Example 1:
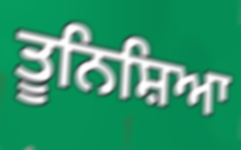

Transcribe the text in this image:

ਤੂਨਿਸ਼ਿਆ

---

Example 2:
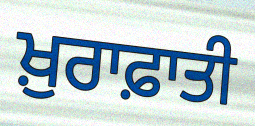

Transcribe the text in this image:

ਖ਼ੁਰਾਫ਼ਾਤੀ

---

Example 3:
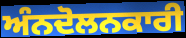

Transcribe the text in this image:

ਅੰਨਦੋਲਨਕਾਰੀ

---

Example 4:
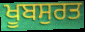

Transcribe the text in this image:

ਖੂਬਸੁਰਤ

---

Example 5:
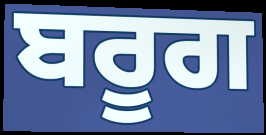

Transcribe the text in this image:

ਬਰੂਗ